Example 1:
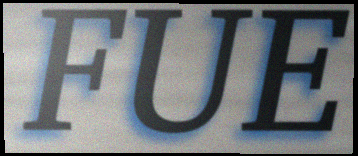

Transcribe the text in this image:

FUE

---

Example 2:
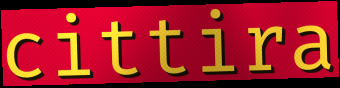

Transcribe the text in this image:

cittira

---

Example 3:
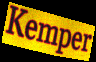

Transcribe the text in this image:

Kemper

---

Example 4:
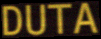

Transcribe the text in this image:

DUTA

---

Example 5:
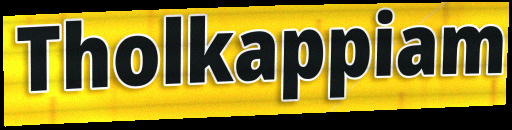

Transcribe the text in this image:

Tholkappiam